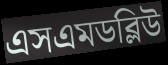
এসএমডব্লিউ